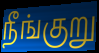
நீங்குறு